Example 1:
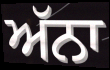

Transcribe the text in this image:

ਅੱਨਾ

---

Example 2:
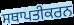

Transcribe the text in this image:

ਸਥਾਪਤੀਕਰਨ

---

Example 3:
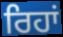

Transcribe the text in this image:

ਰਿਹਾਂ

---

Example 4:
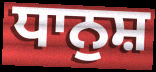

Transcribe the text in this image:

ਧਾਨੁਸ਼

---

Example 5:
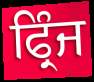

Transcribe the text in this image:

ਫ੍ਰਿੰਜ